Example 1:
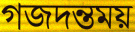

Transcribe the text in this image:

গজদন্তময়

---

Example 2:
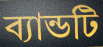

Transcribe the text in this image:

ব্যান্ডটি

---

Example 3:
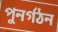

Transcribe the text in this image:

পুনর্গঠন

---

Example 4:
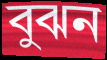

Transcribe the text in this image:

বুঝন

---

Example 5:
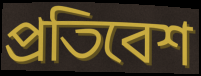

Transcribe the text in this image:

প্রতিবেশ